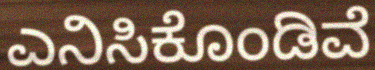
ಎನಿಸಿಕೊಂಡಿವೆ